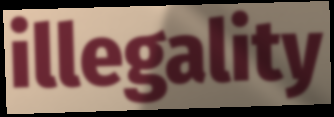
illegality